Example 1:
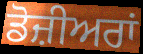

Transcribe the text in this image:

ਡੋਜ਼ੀਅਰਾਂ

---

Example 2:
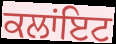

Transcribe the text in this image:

ਕਲਾਂਇਟ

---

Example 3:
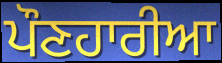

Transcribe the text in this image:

ਪੌਣਹਾਰੀਆ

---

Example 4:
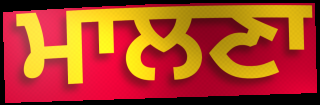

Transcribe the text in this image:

ਮਾਲਣਾ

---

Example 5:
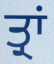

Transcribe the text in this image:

ਤ੍ਰਾਂ